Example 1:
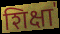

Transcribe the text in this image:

शिक्षा॑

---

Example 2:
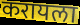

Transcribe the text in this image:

करायला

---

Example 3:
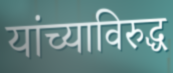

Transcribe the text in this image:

यांच्याविरुद्ध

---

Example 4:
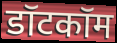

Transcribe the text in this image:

डॉटकॉम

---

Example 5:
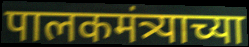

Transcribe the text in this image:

पालकमंत्र्याच्या